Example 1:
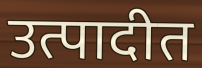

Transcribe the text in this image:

उत्पादीत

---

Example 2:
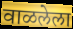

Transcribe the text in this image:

वाळलेला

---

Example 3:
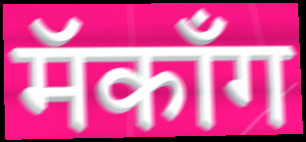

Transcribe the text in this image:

मॅकाँग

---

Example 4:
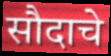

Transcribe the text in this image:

सौदाचे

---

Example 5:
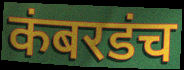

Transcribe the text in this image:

कंबरडंच